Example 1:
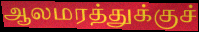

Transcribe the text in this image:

ஆலமரத்துக்குச்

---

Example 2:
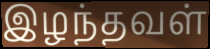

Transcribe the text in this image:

இழந்தவள்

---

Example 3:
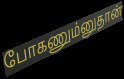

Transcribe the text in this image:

போகணும்னுதான்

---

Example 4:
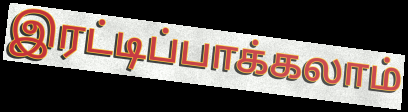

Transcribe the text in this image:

இரட்டிப்பாக்கலாம்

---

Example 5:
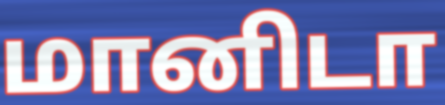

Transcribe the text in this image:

மானிடா